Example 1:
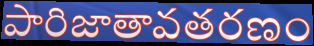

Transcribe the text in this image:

పారిజాతావతరణం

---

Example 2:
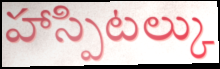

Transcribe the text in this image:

హాస్పిటల్కు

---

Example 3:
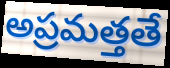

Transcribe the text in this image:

అప్రమత్తతే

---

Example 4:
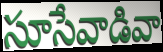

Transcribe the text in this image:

సూసేవాడివా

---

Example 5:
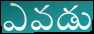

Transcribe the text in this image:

ఎవడు